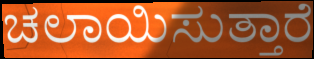
ಚಲಾಯಿಸುತ್ತಾರೆ